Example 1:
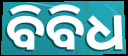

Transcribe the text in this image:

ବିବିଧ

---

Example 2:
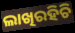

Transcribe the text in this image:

ଲାଖିରହିଚି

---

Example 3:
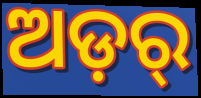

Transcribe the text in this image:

ଅଡ଼ର୍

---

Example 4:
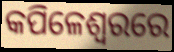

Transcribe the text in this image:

କପିଳେଶ୍ୱରରେ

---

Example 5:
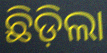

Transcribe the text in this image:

ଛିଡ଼ିଲା